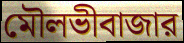
মৌলভীবাজার